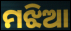
ମଝିଆ